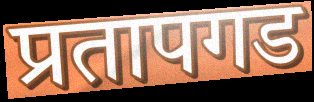
प्रतापगड